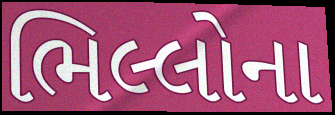
ભિલ્લોના